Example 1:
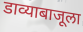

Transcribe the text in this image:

डाव्याबाजूला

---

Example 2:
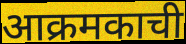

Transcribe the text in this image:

आक्रमकाची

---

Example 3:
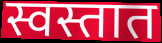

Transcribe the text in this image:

स्वस्तात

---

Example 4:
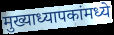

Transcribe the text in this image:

मुख्याध्यापकांमध्ये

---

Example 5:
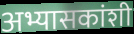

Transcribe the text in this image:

अभ्यासकांशी